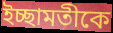
ইচ্ছামতীকে